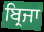
ਬ੍ਰਿਜਾ